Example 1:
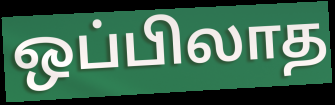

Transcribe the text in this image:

ஒப்பிலாத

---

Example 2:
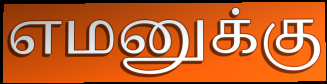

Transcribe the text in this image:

எமனுக்கு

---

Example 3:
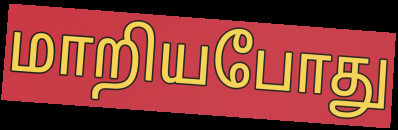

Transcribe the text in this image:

மாறியபோது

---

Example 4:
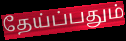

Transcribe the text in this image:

தேய்ப்பதும்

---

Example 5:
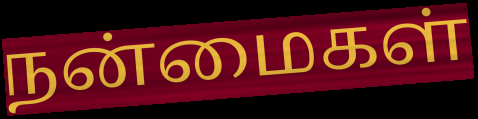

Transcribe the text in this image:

நன்மைகள்